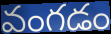
వంగడం